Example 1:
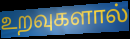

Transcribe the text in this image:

உறவுகளால்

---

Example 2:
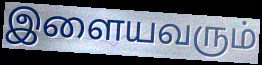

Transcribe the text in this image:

இளையவரும்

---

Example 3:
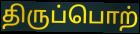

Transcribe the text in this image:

திருப்பொற்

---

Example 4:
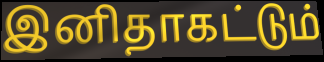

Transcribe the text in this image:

இனிதாகட்டும்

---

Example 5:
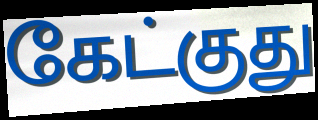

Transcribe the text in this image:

கேட்குது